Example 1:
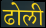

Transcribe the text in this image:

ढोली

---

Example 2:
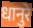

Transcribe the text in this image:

धानुरे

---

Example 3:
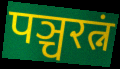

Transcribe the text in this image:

पञ्चरत्नं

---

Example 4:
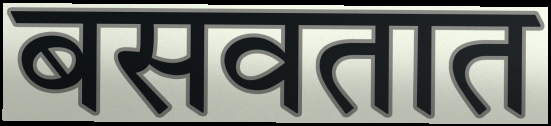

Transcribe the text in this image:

बसवतात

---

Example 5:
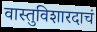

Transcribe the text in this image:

वास्तुविशारदाचं